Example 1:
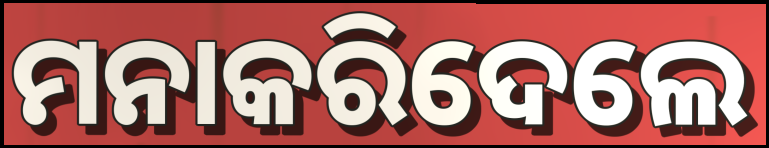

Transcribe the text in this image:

ମନାକରିଦେଲେ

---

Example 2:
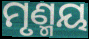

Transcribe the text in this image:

ମୃଣ୍ମୟ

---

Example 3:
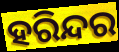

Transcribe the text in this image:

ହରିନ୍ଦର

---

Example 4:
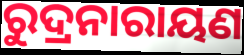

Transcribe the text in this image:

ରୁଦ୍ରନାରାୟଣ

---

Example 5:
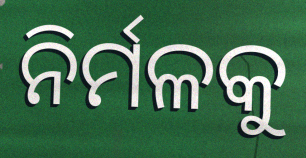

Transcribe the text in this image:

ନିର୍ମଳକୁ